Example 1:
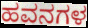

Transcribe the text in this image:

ಹವನಗಳ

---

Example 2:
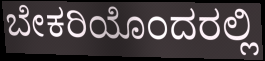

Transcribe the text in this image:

ಬೇಕರಿಯೊಂದರಲ್ಲಿ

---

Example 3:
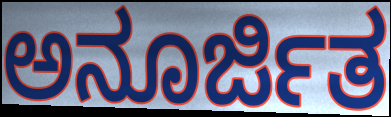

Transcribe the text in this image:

ಅನೂರ್ಜಿತ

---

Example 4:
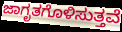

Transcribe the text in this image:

ಜಾಗೃತಗೊಳಿಸುತ್ತವೆ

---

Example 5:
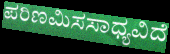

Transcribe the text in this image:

ಪರಿಣಮಿಸಸಾಧ್ಯವಿದೆ